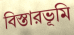
বিস্তারভূমি